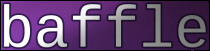
baffle